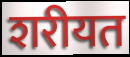
शरीयत